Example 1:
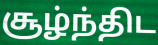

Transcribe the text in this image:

சூழ்ந்திட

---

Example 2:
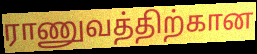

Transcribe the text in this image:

ராணுவத்திற்கான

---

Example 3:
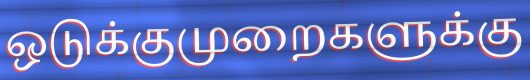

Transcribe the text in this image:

ஒடுக்குமுறைகளுக்கு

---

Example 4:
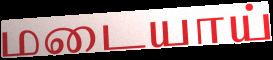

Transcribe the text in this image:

மடையாய்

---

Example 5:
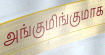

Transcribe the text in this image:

அங்குமிங்குமாக